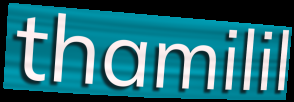
thamilil